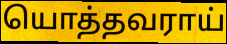
யொத்தவராய்